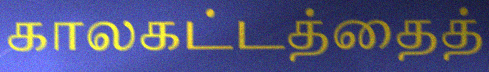
காலகட்டத்தைத்